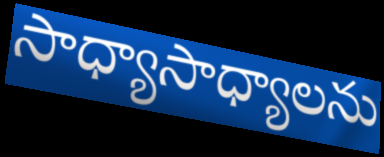
సాధ్యాసాధ్యాలను